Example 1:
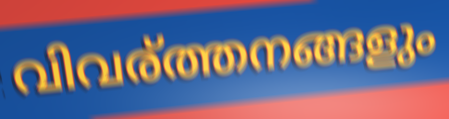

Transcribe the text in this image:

വിവര്ത്തനങ്ങളും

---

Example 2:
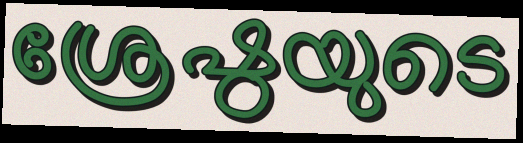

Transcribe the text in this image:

ശ്രേഷ്ഠയുടെ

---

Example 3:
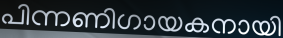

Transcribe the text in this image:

പിന്നണിഗായകനായി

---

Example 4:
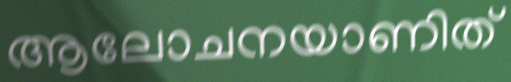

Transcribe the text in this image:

ആലോചനയാണിത്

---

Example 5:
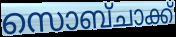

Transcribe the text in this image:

സൊബ്ചാക്ക്